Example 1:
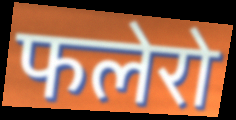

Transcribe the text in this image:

फलेरो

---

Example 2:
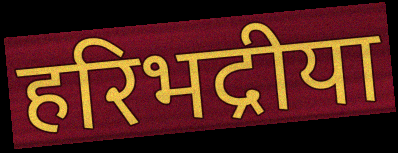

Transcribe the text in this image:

हरिभद्रीया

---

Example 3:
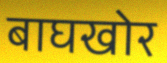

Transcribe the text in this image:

बाघखोर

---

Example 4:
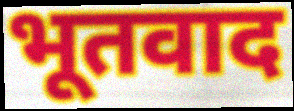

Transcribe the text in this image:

भूतवाद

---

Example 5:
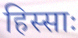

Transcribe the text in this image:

हिस्साः